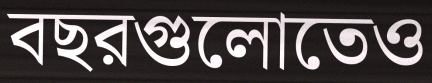
বছরগুলোতেও